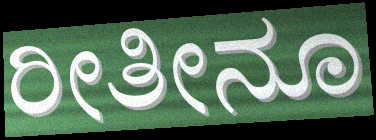
ರೀತೀನೂ